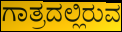
ಗಾತ್ರದಲ್ಲಿರುವ